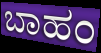
ಬಾಹಂ